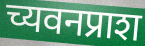
च्यवनप्राश